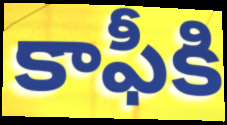
కాఫీకి